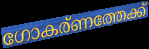
ഗോകര്ണത്തേക്ക്